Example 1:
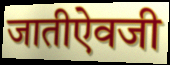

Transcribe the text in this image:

जातीऐवजी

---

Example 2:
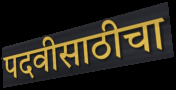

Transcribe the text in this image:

पदवीसाठीचा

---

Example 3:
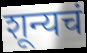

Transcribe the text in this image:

शून्यचं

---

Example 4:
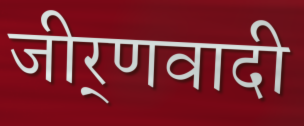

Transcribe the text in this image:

जीर्णवादी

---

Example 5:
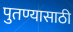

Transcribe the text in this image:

पुतण्यासाठी